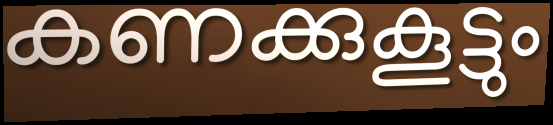
കണക്കുകൂട്ടും